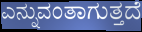
ಎನ್ನುವಂತಾಗುತ್ತದೆ